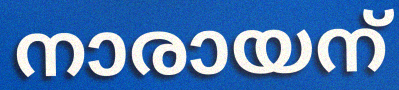
നാരായന്